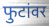
फुटांवर